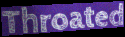
Throated